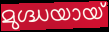
മുഗ്ദ്ധയായ്